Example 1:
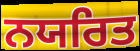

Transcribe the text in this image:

ਨਯਰਿਤ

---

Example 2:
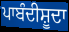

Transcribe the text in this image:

ਪਾਬੰਦੀਸ਼ੂਦਾ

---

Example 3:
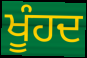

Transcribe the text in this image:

ਖੂੰਹਦ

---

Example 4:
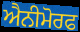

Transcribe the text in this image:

ਐਨੀਮੋਰਫ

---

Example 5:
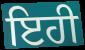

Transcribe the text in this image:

ਇਹੀ